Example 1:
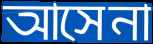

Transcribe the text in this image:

আসেনা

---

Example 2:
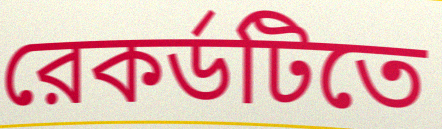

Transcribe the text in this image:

রেকর্ডটিতে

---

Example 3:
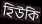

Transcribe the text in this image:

হিউকি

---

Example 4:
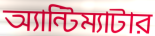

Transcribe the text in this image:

অ্যান্টিম্যাটার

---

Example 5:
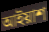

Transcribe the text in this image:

আইয়াশ